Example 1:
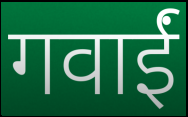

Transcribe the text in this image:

गवाईं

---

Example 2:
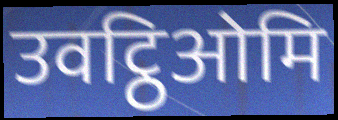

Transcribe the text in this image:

उवट्ठिओमि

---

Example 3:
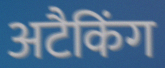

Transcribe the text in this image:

अटैकिंग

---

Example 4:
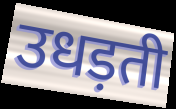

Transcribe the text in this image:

उधड़ती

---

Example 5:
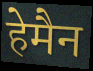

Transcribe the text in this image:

हेमैन